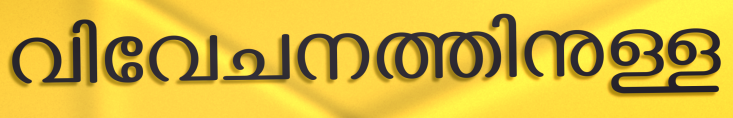
വിവേചനത്തിനുള്ള